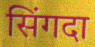
सिंगदा